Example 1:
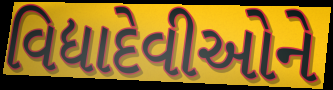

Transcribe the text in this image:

વિદ્યાદેવીઓને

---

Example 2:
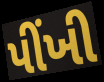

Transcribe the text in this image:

પીંખી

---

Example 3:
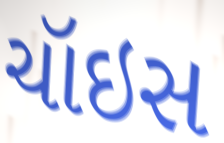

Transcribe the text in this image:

ચૉઇસ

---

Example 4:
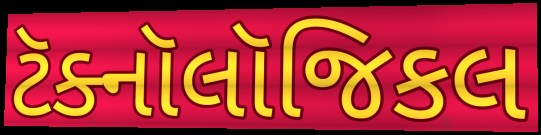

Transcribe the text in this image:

ટૅક્નૉલૉજિકલ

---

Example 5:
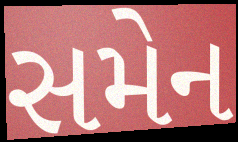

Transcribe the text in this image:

સમેન